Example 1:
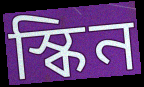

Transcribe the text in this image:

স্কিন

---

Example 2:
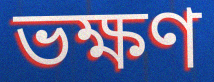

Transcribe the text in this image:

ভক্ষণ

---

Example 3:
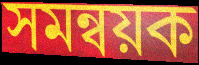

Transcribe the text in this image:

সমন্বয়ক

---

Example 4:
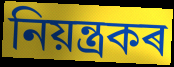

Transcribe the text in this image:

নিয়ন্ত্ৰকৰ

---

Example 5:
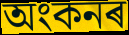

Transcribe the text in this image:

অংকনৰ